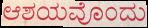
ಆಶಯವೊಂದು